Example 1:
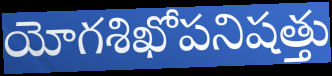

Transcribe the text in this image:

యోగశిఖోపనిషత్తు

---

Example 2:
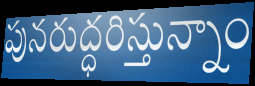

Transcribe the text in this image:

పునరుద్ధరిస్తున్నాం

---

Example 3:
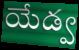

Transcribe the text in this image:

యేడ్వ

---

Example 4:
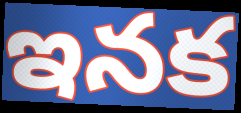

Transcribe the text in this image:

ఇనక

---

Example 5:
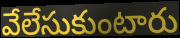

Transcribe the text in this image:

వేలేసుకుంటారు